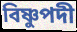
বিষ্ণুপদী